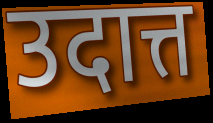
उदात्त